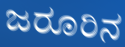
ಜರೂರಿನ